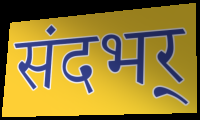
संदभर्